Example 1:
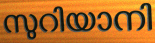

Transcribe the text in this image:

സുറിയാനി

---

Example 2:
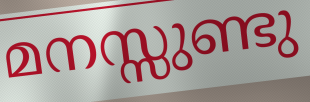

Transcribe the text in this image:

മനസ്സുണ്ടു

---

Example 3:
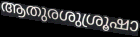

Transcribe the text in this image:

ആതുരശുശ്രൂഷാ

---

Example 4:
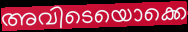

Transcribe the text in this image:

അവിടെയൊക്കെ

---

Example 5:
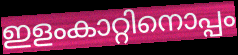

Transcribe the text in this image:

ഇളംകാറ്റിനൊപ്പം